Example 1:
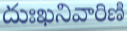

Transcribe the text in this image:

దుఃఖనివారిణి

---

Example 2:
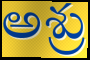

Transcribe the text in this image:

అశ్రు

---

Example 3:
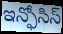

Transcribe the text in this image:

ఇన్ఫోసిస్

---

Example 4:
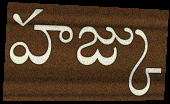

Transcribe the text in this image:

హజ్కు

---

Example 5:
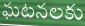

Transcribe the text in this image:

ఘటనలకు